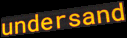
undersand